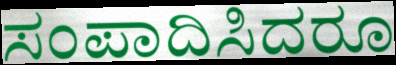
ಸಂಪಾದಿಸಿದರೂ